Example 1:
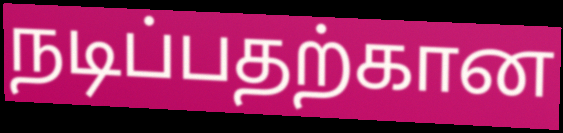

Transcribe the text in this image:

நடிப்பதற்கான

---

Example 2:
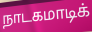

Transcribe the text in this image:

நாடகமாடிக்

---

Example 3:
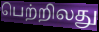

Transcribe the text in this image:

பெற்றிலது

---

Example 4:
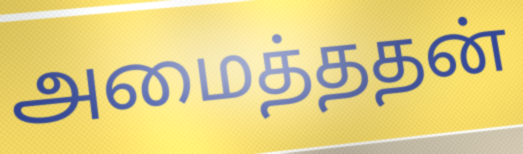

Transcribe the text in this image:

அமைத்ததன்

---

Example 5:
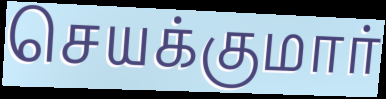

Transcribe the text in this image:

செயக்குமார்